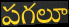
పగలూ